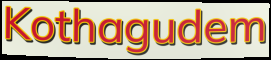
Kothagudem